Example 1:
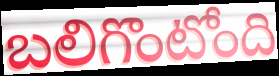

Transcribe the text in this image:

బలిగొంటోంది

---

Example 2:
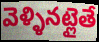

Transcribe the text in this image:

వెళ్ళినట్లైతే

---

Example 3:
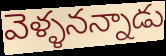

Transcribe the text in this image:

వెళ్ళనన్నాడు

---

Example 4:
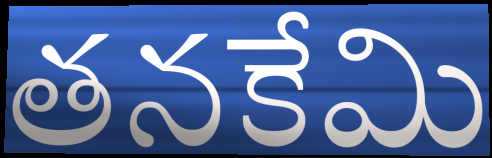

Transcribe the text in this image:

తనకేమి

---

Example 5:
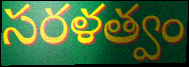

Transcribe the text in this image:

సరళత్వం